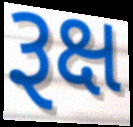
રૂક્ષ